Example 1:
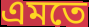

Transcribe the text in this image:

এমতে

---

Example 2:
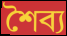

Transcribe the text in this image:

শৈব্য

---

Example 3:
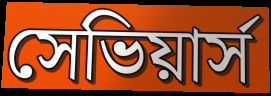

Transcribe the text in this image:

সেভিয়ার্স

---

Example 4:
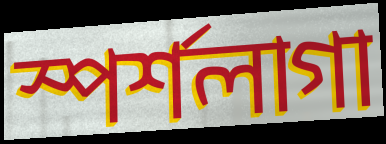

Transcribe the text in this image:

স্পর্শলাগা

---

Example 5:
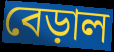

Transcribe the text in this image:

বেড়াল